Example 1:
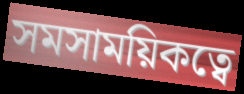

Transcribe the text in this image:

সমসাময়িকত্বে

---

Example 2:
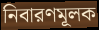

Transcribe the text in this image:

নিবারণমূলক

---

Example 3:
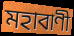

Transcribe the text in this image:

মহাবাণী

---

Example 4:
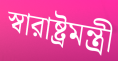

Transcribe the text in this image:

স্বারাষ্ট্রমন্ত্রী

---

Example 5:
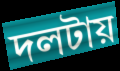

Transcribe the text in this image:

দলটায়